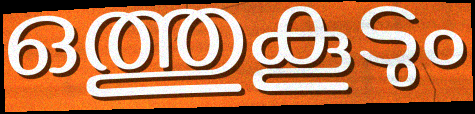
ഒത്തുകൂടും